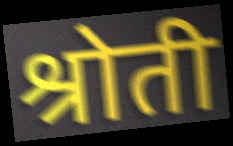
श्रोती